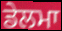
ਡੇਲਮਾ